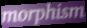
morphism